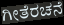
ಗೀತೆರಚನೆ